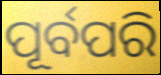
ପୂର୍ବପରି